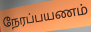
நேரப்பயணம்